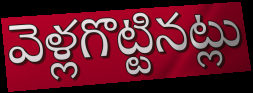
వెళ్లగొట్టినట్లు